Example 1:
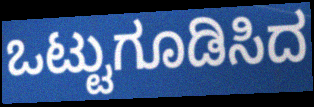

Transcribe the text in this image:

ಒಟ್ಟುಗೂಡಿಸಿದ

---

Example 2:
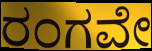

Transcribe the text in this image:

ರಂಗವೇ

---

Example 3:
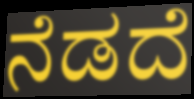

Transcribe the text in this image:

ನೆಡದೆ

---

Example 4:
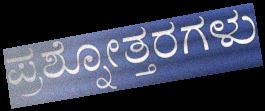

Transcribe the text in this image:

ಪ್ರಶ್ನೋತ್ತರಗಳು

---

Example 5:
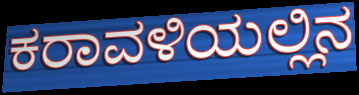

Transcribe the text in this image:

ಕರಾವಳಿಯಲ್ಲಿನ